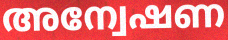
അന്വേഷണ